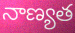
నాణ్యత